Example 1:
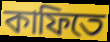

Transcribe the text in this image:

কাফিতে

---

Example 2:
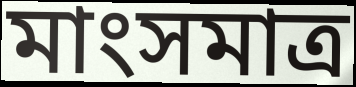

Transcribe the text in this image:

মাংসমাত্র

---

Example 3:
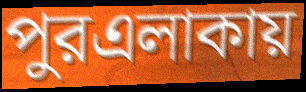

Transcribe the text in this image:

পুরএলাকায়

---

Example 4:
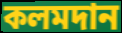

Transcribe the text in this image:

কলমদান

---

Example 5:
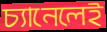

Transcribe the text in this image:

চ্যানেলেই